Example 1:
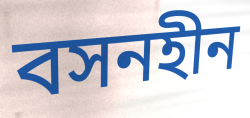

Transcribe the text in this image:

বসনহীন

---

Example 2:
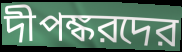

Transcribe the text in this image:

দীপঙ্করদের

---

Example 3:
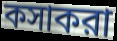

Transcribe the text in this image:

কসাকরা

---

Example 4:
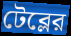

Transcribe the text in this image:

টেব্লের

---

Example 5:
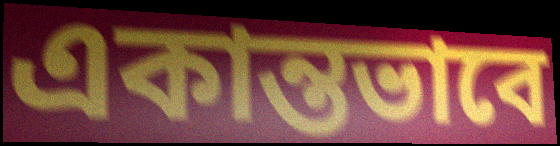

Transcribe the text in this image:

একান্তভাবে